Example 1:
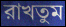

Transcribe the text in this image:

রাখতুম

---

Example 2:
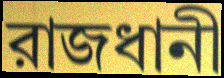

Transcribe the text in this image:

রাজধানী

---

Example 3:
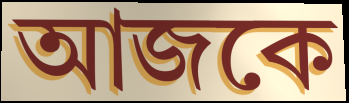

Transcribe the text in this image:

আজকে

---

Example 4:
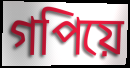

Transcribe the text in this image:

গপিয়ে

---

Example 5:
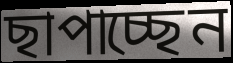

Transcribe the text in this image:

ছাপাচ্ছেন